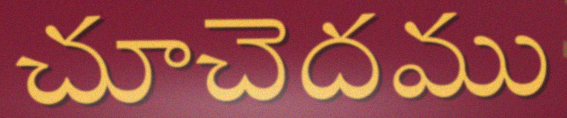
చూచెదము